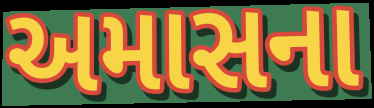
અમાસના